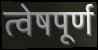
त्वेषपूर्ण